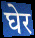
घेर